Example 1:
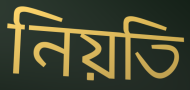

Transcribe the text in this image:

নিয়তি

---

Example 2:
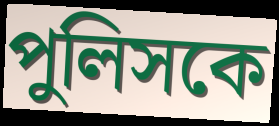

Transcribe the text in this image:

পুলিসকে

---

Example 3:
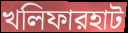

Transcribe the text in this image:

খলিফারহাট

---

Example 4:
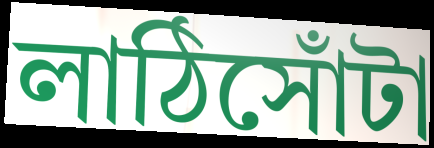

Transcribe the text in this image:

লাঠিসোঁটা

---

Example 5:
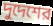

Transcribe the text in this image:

দুদেশের